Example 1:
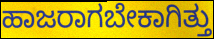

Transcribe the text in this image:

ಹಾಜರಾಗಬೇಕಾಗಿತ್ತು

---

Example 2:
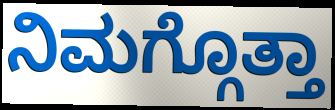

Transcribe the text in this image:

ನಿಮಗ್ಗೊತ್ತಾ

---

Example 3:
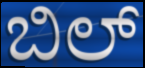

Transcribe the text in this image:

ಬಿಲ್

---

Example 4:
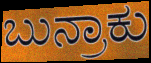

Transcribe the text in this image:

ಬುನ್ರಾಕು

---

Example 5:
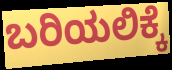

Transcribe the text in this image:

ಬರಿಯಲಿಕ್ಕೆ